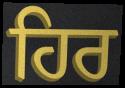
ਹਿਰ